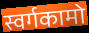
स्वर्गकामो